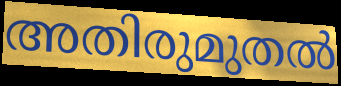
അതിരുമുതൽ